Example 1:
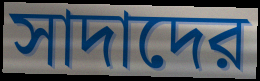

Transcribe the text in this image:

সাদাদের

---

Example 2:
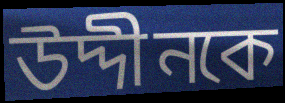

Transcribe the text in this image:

উদ্দীনকে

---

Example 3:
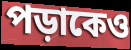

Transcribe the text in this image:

পড়াকেও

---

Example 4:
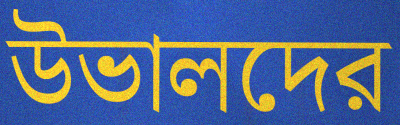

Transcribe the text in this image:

উভালদের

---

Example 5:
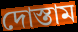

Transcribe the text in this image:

দোস্তাম